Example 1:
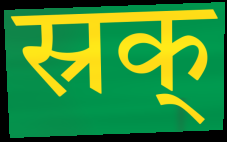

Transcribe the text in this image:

स्रक्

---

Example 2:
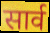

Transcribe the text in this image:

सार्व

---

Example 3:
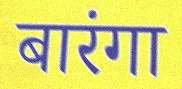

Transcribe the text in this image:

बारंगा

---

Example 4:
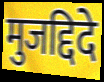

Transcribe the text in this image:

मुजद्दिदे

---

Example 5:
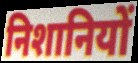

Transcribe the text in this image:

निशानियों